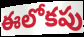
ఈలోకపు